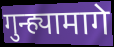
गुन्ह्यामागे